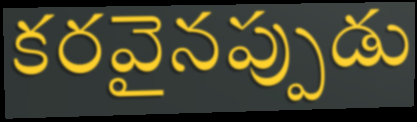
కరవైనప్పుడు